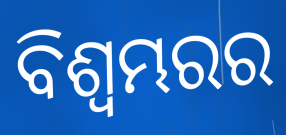
ବିଶ୍ଵମ୍ଭରର